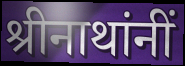
श्रीनाथांनीं